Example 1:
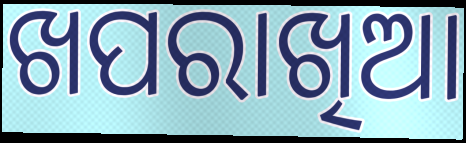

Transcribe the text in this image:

ଖପରାଖିଆ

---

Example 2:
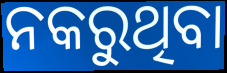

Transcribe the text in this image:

ନକରୁଥିବା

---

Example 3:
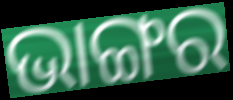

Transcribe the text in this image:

ଭାଙ୍ଗର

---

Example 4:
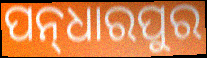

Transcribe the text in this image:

ପନ୍‌ଧାରପୁର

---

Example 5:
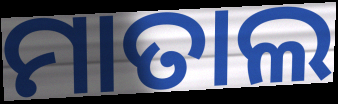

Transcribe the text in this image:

ମାତାଲ